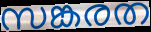
സങ്കരത